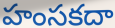
హంసకదా